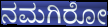
ನಮಗಿರೋ